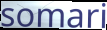
somari